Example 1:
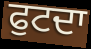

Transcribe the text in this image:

ਫੁਟਦਾ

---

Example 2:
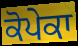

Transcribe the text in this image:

ਕੋਪੇਕਾ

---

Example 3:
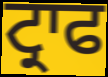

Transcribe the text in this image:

ਟ੍ਰਾਫ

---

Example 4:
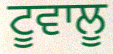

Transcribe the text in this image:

ਟੂਵਾਲੂ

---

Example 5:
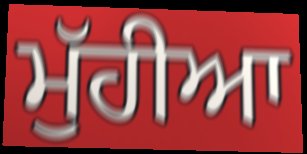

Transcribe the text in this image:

ਮੁੱਹੀਆ